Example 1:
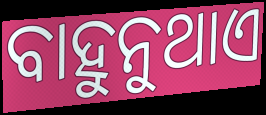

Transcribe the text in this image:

ବାହୁନୁଥାଏ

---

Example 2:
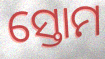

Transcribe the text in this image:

ସ୍ତୋମ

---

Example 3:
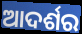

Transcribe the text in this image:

ଆଦର୍ଶର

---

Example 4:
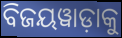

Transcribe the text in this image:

ବିଜୟୱାଡ଼ାକୁ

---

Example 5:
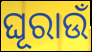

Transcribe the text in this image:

ଘୂରାଉଁ